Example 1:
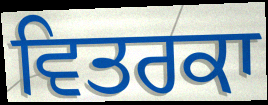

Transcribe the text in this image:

ਵਿਤਰਕਾ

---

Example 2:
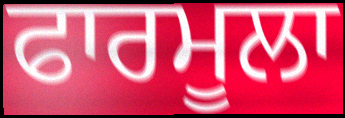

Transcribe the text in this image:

ਫਾਰਮੂਲਾ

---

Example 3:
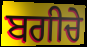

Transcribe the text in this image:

ਬਗੀਚੇ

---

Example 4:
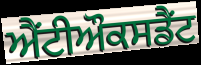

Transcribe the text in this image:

ਐਂਟੀਔਕਸਡੈਂਟ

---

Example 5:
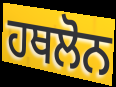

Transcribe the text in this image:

ਹਥਲੋਨ